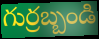
గుర్రబ్బండి